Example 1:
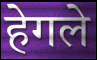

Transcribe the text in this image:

हेगले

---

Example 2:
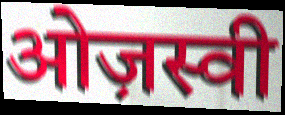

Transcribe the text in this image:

ओज़स्वी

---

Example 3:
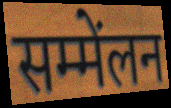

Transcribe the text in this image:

सम्मेंलन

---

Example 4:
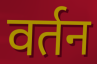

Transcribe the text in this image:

वर्तन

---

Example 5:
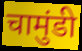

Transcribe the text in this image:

चामुंडी